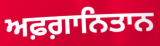
ਅਫ਼ਗ਼ਾਨਿਤਾਨ